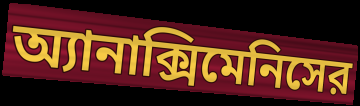
অ্যানাক্সিমেনিসের